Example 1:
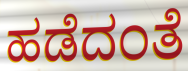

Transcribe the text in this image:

ಹಡೆದಂತೆ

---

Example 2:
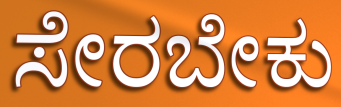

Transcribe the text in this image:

ಸೇರಬೇಕು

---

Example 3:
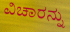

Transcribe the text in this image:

ವಿಚಾರನ್ನು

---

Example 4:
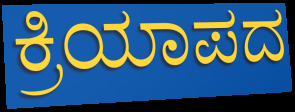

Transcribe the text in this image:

ಕ್ರಿಯಾಪದ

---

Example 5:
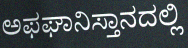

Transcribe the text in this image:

ಅಫಘಾನಿಸ್ತಾನದಲ್ಲಿ